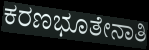
ಕರಣಭೂತೇನಾತಿ